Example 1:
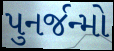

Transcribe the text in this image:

પુનર્જન્મો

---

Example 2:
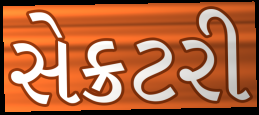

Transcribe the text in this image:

સેક્રટરી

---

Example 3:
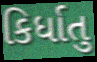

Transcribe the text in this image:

કિર્ધાતુ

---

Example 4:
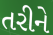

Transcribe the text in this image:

તરીને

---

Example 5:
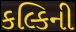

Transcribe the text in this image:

કલ્કિની